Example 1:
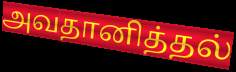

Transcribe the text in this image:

அவதானித்தல்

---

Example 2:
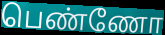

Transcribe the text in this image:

பெண்ணோ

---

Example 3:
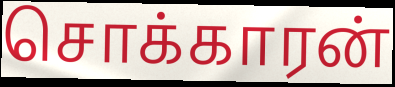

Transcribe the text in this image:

சொக்காரன்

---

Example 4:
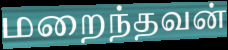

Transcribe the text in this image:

மறைந்தவன்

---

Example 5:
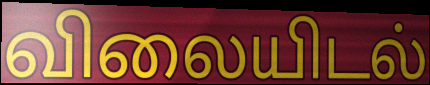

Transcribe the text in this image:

விலையிடல்